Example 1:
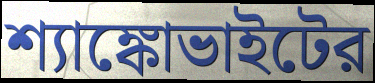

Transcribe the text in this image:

শ্যাঙ্কোভাইটের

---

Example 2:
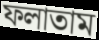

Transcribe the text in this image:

ফলাতাম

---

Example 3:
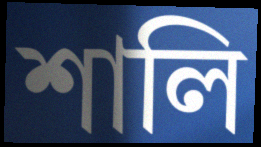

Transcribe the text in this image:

শালি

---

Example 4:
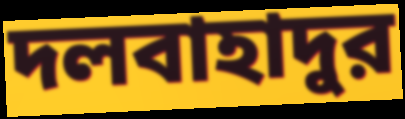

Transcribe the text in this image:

দলবাহাদুর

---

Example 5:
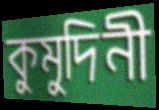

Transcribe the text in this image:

কুমুদিনী